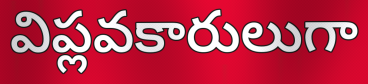
విప్లవకారులుగా